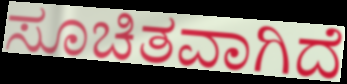
ಸೂಚಿತವಾಗಿದೆ